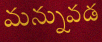
మన్నువడ